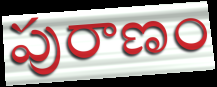
పురాణం